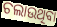
ଚଲାଉଥିବା